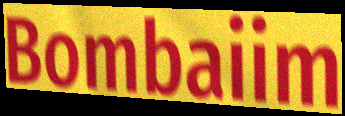
Bombaiim